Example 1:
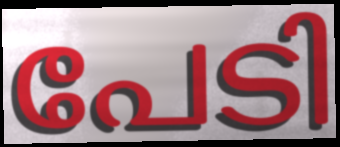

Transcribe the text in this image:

പേടി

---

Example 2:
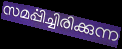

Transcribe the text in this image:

സമൎപ്പിച്ചിരിക്കുന്ന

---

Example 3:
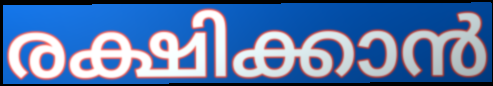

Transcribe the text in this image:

രക്ഷിക്കാൻ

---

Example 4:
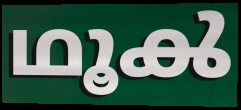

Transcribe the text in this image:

ഥൂൿ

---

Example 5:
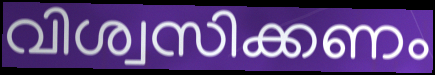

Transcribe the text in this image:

വിശ്വസിക്കണം